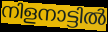
നിളനാട്ടിൽ